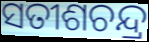
ସତୀଶଚନ୍ଦ୍ର